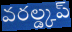
వరల్డ్కప్